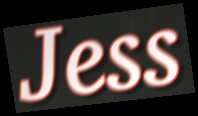
Jess